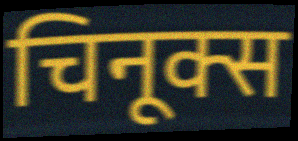
चिनूक्स